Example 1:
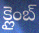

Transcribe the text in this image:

క్లైంబ్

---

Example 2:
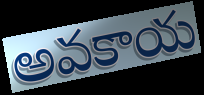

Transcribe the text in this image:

అవకాయ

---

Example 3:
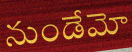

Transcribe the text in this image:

నుండేమో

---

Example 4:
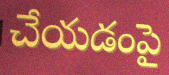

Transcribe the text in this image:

చేయడంపై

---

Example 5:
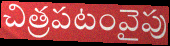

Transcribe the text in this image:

చిత్రపటంవైపు